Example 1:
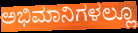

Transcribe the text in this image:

ಅಭಿಮಾನಿಗಳಲ್ಲೂ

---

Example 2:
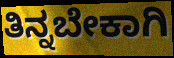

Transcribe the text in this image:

ತಿನ್ನಬೇಕಾಗಿ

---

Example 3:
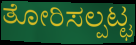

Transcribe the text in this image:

ತೋರಿಸಲ್ಪಟ್ಟ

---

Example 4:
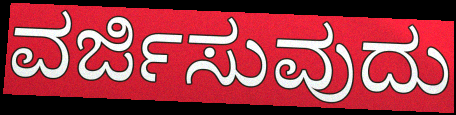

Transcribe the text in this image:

ವರ್ಜಿಸುವುದು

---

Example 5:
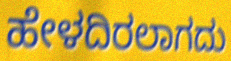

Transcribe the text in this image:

ಹೇಳದಿರಲಾಗದು